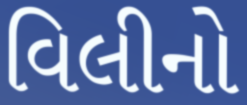
વિલીનો